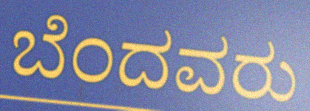
ಬೆಂದವರು